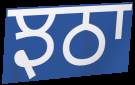
ਝਠਾ